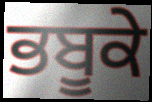
ਭਬੂਕੇ